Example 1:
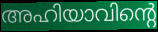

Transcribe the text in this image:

അഹിയാവിന്റെ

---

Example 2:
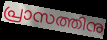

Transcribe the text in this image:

പ്രാസത്തിനു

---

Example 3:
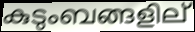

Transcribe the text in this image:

കുടുംബങ്ങളില്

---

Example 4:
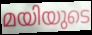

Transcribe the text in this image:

മയിയുടെ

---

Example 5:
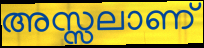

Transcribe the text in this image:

അസ്സലാണ്